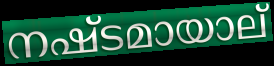
നഷ്ടമായാല്